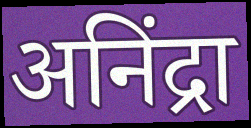
अनिंद्रा